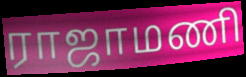
ராஜாமணி